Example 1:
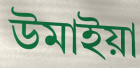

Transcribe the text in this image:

উমাইয়া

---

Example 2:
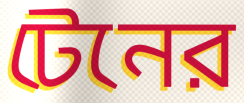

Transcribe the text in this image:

টেনের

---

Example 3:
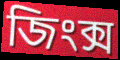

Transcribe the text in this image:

জিংক্স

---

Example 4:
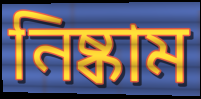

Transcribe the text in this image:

নিষ্কাম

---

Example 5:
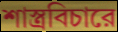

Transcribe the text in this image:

শাস্ত্রবিচারে